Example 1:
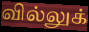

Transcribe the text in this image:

வில்லுக்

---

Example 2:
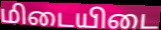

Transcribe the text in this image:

மிடையிடை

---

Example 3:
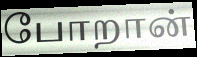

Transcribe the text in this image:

போறான்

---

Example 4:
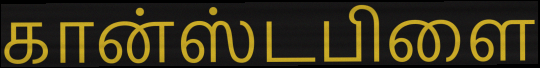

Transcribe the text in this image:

கான்ஸ்டபிளை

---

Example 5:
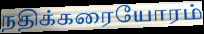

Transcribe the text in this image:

நதிக்கரையோரம்